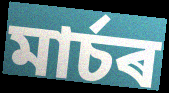
মাৰ্চৰ